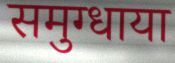
समुग्धाया